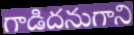
గాడిదనుగాని